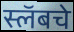
स्लॅबचे